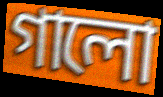
গালো